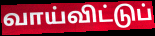
வாய்விட்டுப்